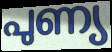
പുണ്യ